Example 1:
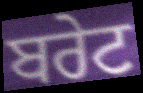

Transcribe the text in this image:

ਬਰੇਟ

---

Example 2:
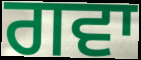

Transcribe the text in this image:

ਗਵਾ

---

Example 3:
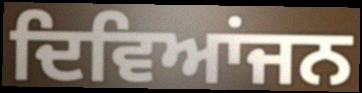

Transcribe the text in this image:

ਦਿਵਿਆਂਜਨ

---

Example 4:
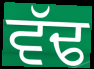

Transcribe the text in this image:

ਵੱਢ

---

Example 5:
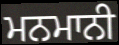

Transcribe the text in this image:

ਮਨਮਾਨੀ